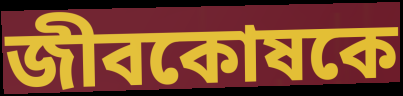
জীবকোষকে